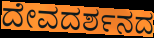
ದೇವದರ್ಶನದ